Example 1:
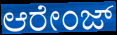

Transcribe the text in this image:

ಆರೇಂಜ್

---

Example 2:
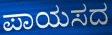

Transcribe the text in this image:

ಪಾಯಸದ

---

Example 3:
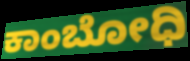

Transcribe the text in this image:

ಕಾಂಬೋಧಿ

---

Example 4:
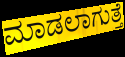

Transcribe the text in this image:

ಮಾಡಲಾಗುತ್ತೆ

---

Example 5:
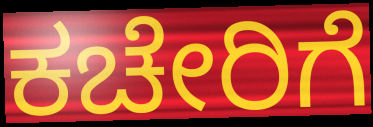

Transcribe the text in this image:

ಕಚೇರಿಗೆ